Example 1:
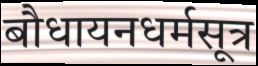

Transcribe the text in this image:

बौधायनधर्मसूत्र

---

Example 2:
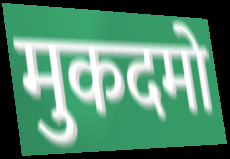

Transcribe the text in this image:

मुकदमो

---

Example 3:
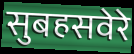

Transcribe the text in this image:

सुबहसवेरे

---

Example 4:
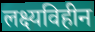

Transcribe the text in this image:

लक्ष्यविहीन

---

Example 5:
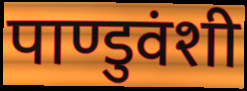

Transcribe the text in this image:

पाण्डुवंशी